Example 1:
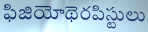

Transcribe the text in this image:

ఫిజియోథెరపిస్టులు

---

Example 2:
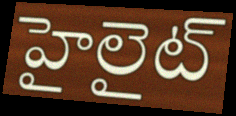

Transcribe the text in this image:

హైలైట్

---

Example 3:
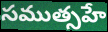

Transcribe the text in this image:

సముత్సహే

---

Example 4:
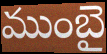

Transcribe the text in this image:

ముంబై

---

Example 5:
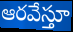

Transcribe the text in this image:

ఆరవేస్తూ